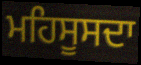
ਮਹਿਸੂਸਦਾ